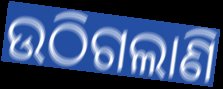
ଉଠିଗଲାଣି